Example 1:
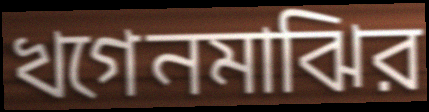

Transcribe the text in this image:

খগেনমাঝির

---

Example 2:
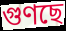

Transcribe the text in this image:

গুণছে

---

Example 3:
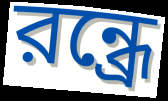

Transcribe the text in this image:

রন্ধ্রে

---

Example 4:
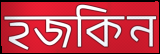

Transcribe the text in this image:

হজকিন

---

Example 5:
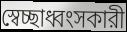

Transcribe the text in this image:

স্বেচ্ছাধ্বংসকারী